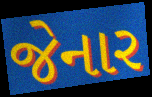
જેનાર